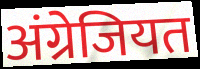
अंग्रेजियत